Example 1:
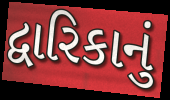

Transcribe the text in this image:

દ્વારિકાનું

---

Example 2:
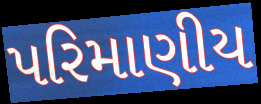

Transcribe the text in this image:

પરિમાણીય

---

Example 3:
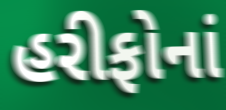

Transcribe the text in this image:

હરીફોનાં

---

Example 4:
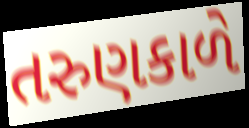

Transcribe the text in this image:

તરુણકાળે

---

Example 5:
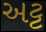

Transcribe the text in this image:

અટ્ટ